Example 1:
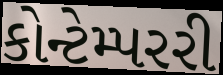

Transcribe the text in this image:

કોન્ટેમ્પરરી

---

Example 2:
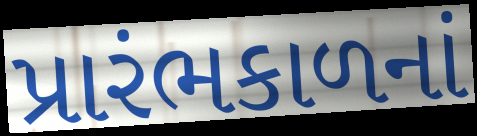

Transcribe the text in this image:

પ્રારંભકાળનાં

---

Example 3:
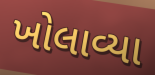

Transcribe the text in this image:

ખોલાવ્યા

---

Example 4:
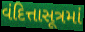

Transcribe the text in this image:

વંદિત્તાસૂત્રમાં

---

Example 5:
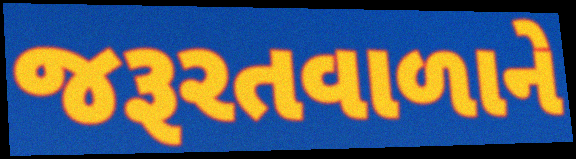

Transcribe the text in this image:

જરૂરતવાળાને